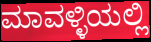
ಮಾವಳ್ಳಿಯಲ್ಲಿ